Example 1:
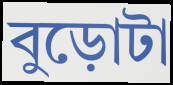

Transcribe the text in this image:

বুড়োটা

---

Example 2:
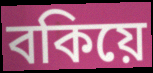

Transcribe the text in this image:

বকিয়ে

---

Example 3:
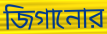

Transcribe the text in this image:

জিগানোর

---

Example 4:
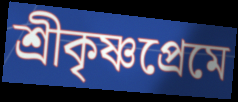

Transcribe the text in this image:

শ্রীকৃষ্ণপ্রেমে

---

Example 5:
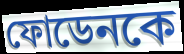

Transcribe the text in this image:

ফোডেনকে